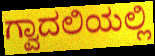
ಗ್ವಾದಲಿಯಲ್ಲಿ